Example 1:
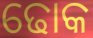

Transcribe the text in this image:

ଢୋକ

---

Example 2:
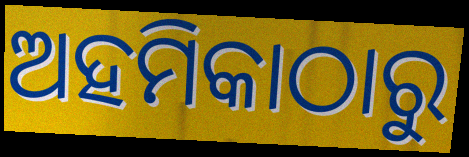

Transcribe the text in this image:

ଅହମିକାଠାରୁ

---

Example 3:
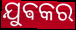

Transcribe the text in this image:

ଯୁଵକର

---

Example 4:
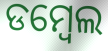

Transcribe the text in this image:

ଡମ୍ୱେଲ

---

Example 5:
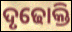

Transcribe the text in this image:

ଦୃଢୋକ୍ତି